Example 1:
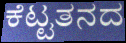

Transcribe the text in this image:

ಕೆಟ್ಟತನದ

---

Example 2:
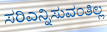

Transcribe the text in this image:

ಸರಿಎನ್ನಿಸುವಂತಿಲ್ಲ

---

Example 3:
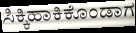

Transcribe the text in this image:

ಸಿಕ್ಕಿಹಾಕಿಕೊಂಡಾಗ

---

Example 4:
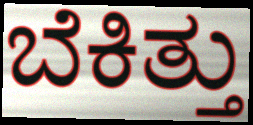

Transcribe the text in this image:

ಬೆಕಿತ್ತು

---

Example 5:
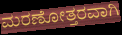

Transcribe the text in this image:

ಮರಣೋತ್ತರವಾಗಿ